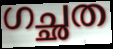
ഗച്ഛത